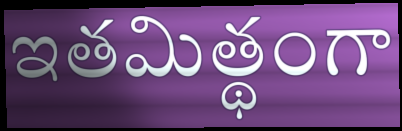
ఇతమిత్థంగా